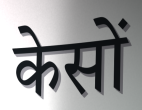
केसों